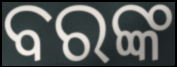
ବରଙ୍କ